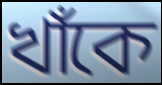
খাঁকে